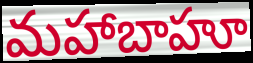
మహాబాహూ